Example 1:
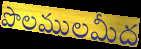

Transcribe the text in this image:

పొలములమీద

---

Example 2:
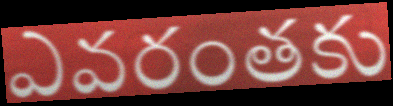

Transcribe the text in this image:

ఎవరంతకు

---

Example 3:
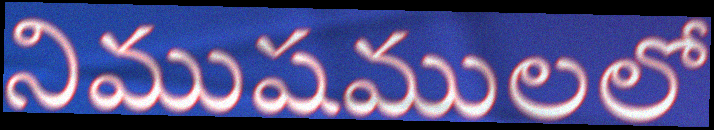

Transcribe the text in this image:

నిముషములలో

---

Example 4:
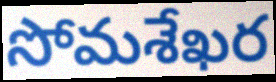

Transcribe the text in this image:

సోమశేఖర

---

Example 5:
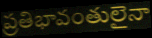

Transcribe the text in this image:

ప్రతిభావంతులైనా